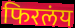
फिरलंय